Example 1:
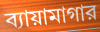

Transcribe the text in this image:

ব্যায়ামাগার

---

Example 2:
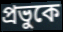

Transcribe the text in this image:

প্রভুকে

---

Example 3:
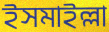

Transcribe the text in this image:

ইসমাইল্লা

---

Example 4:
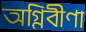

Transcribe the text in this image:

অগ্নিবীণা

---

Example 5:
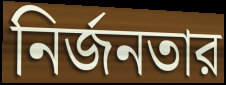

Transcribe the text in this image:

নির্জনতার